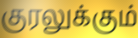
குரலுக்கும்